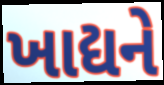
ખાદ્યને